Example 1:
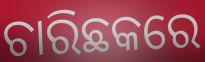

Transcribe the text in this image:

ଚାରିଛକରେ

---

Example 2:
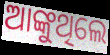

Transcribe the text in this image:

ଆଙ୍କୁଥିଲେ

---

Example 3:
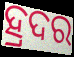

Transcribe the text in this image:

ହ୍ରଦର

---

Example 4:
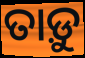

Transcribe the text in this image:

ତାଡ଼ୁ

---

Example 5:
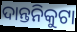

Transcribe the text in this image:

ଦାନ୍ତନିକୁଟା